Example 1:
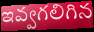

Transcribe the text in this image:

ఇవ్వగలిగిన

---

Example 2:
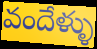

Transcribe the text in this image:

వందేళ్ళు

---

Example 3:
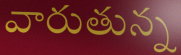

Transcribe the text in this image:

వారుతున్న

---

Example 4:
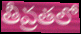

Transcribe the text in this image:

తీవ్రతలో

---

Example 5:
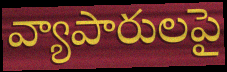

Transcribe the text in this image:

వ్యాపారులపై